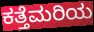
ಕತ್ತೆಮರಿಯ